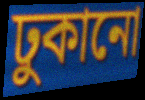
ঢুকানো